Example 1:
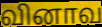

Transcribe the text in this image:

வினாவ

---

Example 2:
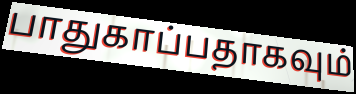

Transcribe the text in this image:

பாதுகாப்பதாகவும்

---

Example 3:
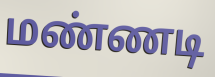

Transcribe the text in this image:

மண்ணடி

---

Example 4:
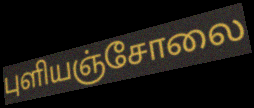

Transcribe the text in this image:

புளியஞ்சோலை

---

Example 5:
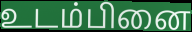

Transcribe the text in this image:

உடம்பினை